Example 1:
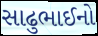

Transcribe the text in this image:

સાઢુભાઈનો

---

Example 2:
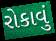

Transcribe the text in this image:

રોકાવું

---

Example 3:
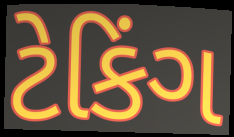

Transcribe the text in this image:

ટેકિંગ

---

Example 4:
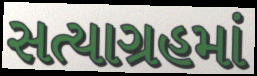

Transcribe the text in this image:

સત્યાગ્રહમાં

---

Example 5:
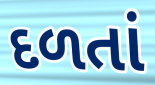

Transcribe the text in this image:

દળતાં